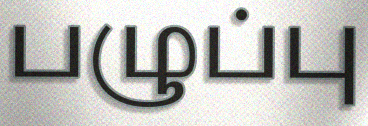
பழுப்பு